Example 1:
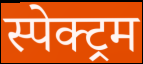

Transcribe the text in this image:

स्पेक्ट्रम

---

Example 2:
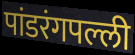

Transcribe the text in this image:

पांडरंगपल्ली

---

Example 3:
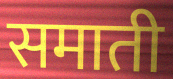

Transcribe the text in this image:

समाती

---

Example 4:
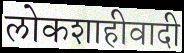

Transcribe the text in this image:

लोकशाहीवादी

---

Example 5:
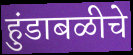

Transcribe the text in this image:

हुंडाबळीचे